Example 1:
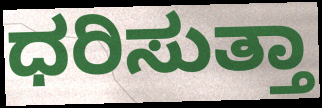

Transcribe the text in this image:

ಧರಿಸುತ್ತಾ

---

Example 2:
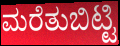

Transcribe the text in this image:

ಮರೆತುಬಿಟ್ಟಿ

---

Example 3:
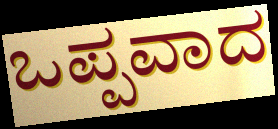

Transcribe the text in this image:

ಒಪ್ಪವಾದ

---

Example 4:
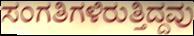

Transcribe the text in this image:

ಸಂಗತಿಗಳಿರುತ್ತಿದ್ದವು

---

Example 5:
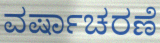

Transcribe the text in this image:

ವರ್ಷಾಚರಣೆ